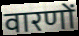
वारणों